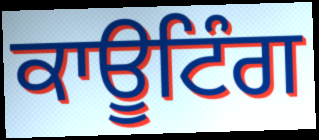
ਕਾਊਟਿੰਗ